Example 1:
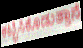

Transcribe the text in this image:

ಕಟ್ಟಿಸಿಕೊಡುತ್ತಾನೆ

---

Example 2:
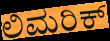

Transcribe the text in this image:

ಲಿಮರಿಕ್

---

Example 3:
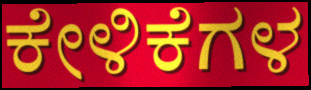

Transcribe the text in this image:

ಕೇಳಿಕೆಗಳ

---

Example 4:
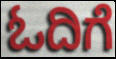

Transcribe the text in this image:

ಓದಿಗೆ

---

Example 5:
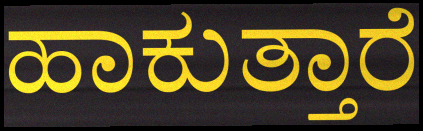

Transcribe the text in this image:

ಹಾಕುತ್ತಾರೆ